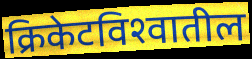
क्रिकेटविश्वातील